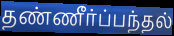
தண்ணீர்ப்பந்தல்